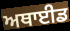
ਅਥਾਈਡ